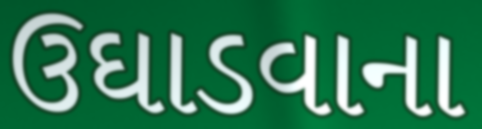
ઉઘાડવાના